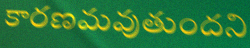
కారణమవుతుందని